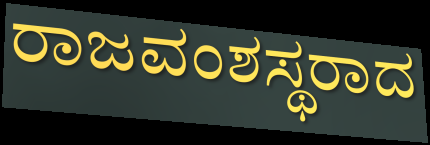
ರಾಜವಂಶಸ್ಥರಾದ